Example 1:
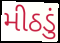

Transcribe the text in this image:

મીઠડું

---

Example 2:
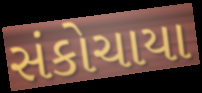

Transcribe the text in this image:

સંકોચાયા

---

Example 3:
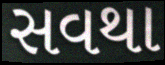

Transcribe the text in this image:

સવથા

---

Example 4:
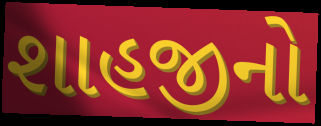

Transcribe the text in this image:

શાહજીનો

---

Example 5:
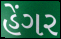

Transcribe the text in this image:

હેંગર